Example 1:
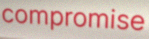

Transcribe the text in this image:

compromise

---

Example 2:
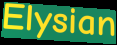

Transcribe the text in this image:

Elysian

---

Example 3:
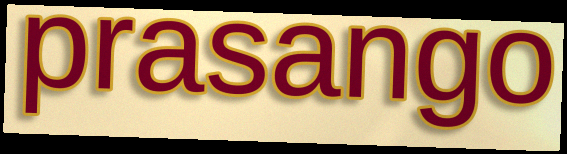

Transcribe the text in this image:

prasango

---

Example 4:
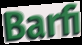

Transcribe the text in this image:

Barfi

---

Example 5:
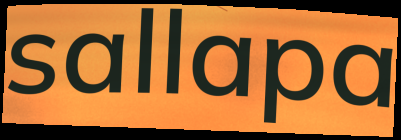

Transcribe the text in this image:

sallapa